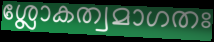
ശ്ലോകത്വമാഗതഃ